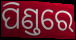
ପିଣ୍ଡରେ